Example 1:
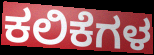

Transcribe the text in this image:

ಕಲಿಕೆಗಳ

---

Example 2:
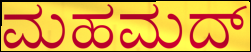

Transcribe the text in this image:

ಮಹಮದ್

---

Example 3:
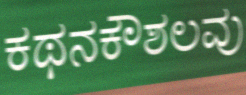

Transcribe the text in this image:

ಕಥನಕೌಶಲವು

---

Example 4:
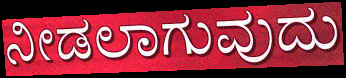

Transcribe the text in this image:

ನೀಡಲಾಗುವುದು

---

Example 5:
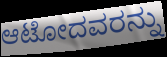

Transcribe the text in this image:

ಆಟೋದವರನ್ನು